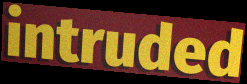
intruded